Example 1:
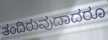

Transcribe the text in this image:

ತಂದಿರುವುದಾದರೂ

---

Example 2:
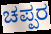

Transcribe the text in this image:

ಚಪ್ಪರ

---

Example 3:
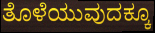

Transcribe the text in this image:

ತೊಳೆಯುವುದಕ್ಕೂ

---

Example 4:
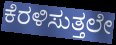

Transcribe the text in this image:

ಕೆರಳಿಸುತ್ತಲೇ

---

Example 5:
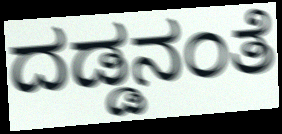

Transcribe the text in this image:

ದಡ್ಡನಂತೆ